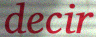
decir